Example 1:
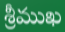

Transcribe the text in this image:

శ్రీముఖ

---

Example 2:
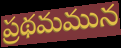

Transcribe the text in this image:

ప్రథమమున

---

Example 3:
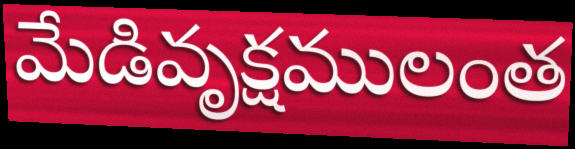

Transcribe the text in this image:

మేడివృక్షములంత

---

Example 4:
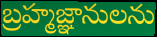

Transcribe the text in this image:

బ్రహ్మజ్ఞానులను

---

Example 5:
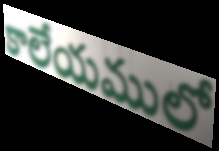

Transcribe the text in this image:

కాలేయములో